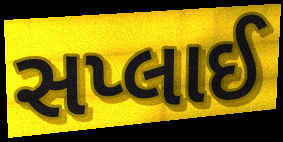
સપ્લાઈ